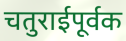
चतुराईपूर्वक